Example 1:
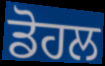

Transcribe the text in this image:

ਡੋਹਲ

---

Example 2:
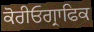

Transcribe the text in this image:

ਕੋਰੀਓਗ੍ਰਾਫਿਕ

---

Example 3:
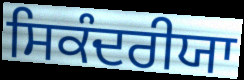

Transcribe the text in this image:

ਸਿਕੰਦਰੀਯਾ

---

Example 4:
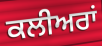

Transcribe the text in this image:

ਕਲੀਅਰਾਂ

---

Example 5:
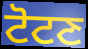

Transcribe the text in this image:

ਟੋਟਣ